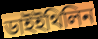
ডাইইথিলিন